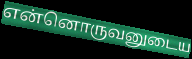
என்னொருவனுடைய